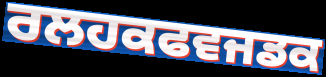
ਰਲਹਕਫਵਜਡਕ